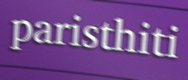
paristhiti